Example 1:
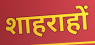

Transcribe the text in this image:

शाहराहों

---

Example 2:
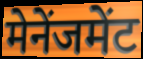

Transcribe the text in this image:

मेनेंजमेंट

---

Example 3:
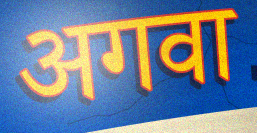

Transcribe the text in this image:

अगवा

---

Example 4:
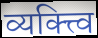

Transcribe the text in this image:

व्यक्त्त्वि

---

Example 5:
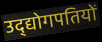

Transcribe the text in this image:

उद्द्योगपतियों